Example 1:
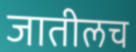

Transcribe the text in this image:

जातीलच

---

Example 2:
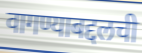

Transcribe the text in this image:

वागण्याबद्दलची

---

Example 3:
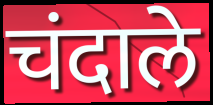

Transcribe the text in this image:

चंदाले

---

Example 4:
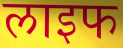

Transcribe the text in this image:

लाइफ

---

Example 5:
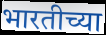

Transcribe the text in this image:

भारतीच्‍या